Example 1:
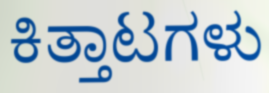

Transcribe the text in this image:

ಕಿತ್ತಾಟಗಳು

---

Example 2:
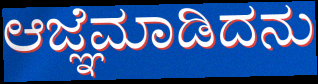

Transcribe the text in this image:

ಆಜ್ಞೆಮಾಡಿದನು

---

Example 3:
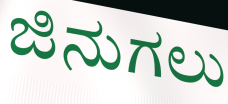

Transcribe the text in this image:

ಜಿನುಗಲು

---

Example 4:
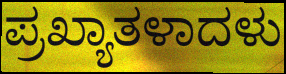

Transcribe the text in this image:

ಪ್ರಖ್ಯಾತಳಾದಳು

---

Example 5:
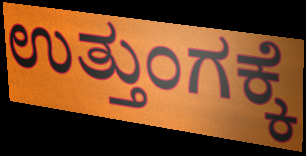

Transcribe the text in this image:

ಉತ್ತುಂಗಕ್ಕೆ